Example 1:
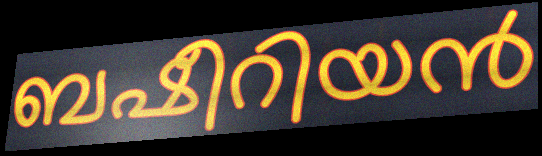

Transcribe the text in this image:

ബഷീറിയൻ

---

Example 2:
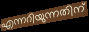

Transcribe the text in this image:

എന്നറിയുന്നതിന്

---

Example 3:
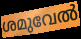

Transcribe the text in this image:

ശമുവേൽ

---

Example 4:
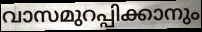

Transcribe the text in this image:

വാസമുറപ്പിക്കാനും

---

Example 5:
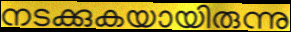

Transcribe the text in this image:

നടക്കുകയായിരുന്നു